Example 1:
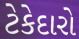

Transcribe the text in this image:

ટેકેદારો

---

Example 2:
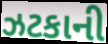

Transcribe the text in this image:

ઝટકાની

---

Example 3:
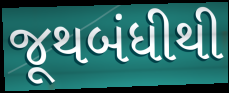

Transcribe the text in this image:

જૂથબંધીથી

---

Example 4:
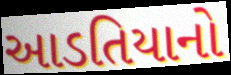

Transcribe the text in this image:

આડતિયાનો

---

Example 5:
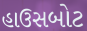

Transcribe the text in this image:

હાઉસબોટ